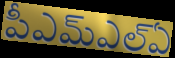
పీఎమ్ఎల్ఏ